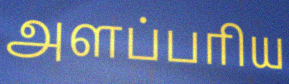
அளப்பரிய